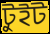
টুইট